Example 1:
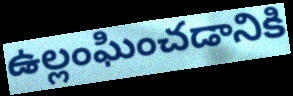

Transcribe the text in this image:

ఉల్లంఘించడానికి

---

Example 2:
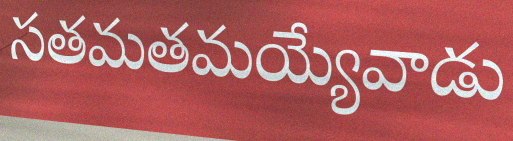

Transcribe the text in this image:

సతమతమయ్యేవాడు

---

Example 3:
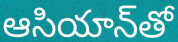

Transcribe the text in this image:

ఆసియాన్‌తో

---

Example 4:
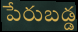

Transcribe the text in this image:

పేరుబడ్డ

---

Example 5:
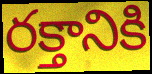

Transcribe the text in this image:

రక్తానికి